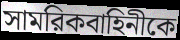
সামরিকবাহিনীকে